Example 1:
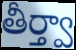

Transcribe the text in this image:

తీర్త్వా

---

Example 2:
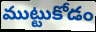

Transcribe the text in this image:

ముట్టుకోడం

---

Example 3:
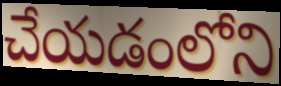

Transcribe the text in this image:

చేయడంలోని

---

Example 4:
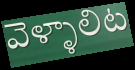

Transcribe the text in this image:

వెళ్ళాలిట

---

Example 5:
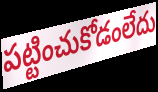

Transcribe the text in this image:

పట్టించుకోడంలేదు